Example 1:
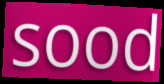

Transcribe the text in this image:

sood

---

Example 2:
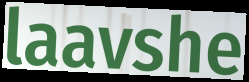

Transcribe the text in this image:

laavshe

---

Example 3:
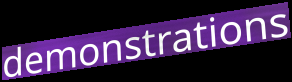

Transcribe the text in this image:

demonstrations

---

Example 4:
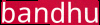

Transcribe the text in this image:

bandhu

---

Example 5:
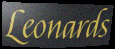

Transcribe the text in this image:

Leonards